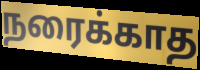
நரைக்காத